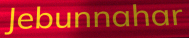
Jebunnahar